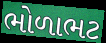
ભોળાભટ